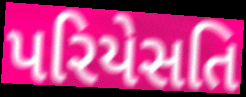
પરિયેસતિ